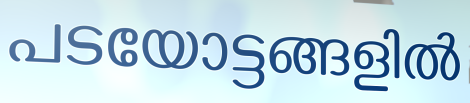
പടയോട്ടങ്ങളിൽ